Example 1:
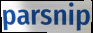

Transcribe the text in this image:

parsnip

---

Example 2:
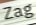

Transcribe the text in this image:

Zag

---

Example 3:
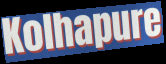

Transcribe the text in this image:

Kolhapure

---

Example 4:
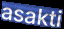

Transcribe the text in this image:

asakti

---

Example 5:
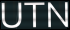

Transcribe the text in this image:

UTN